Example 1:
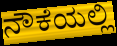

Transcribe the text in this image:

ನೌಕೆಯಲ್ಲಿ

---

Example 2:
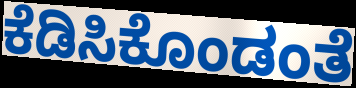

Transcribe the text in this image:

ಕೆಡಿಸಿಕೊಂಡಂತೆ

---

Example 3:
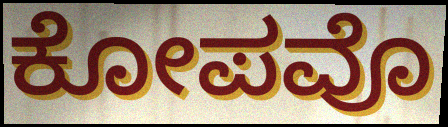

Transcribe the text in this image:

ಕೋಪವೊ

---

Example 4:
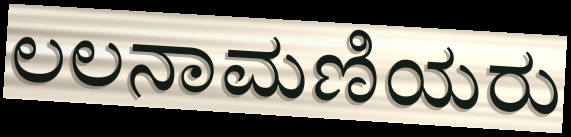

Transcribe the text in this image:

ಲಲನಾಮಣಿಯರು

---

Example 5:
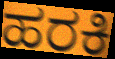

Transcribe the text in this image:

ಹರಕಿ